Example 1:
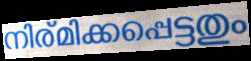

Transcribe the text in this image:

നിര്മിക്കപ്പെട്ടതും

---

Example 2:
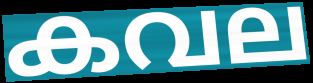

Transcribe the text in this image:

കവല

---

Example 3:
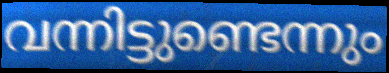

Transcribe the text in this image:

വന്നിട്ടുണ്ടെന്നും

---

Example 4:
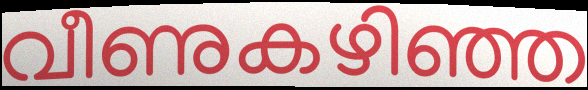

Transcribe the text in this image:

വീണുകഴിഞ്ഞ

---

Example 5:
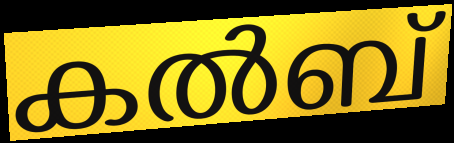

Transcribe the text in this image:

കൽബ്